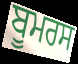
ਬੂਮਰਸ